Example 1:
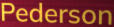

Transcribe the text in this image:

Pederson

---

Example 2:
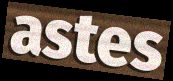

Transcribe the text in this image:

astes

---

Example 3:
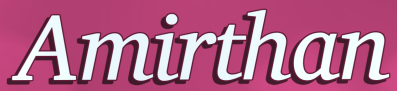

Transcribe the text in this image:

Amirthan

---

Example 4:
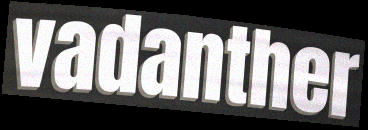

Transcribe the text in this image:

vadanther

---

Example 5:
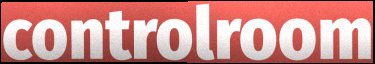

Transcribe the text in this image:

controlroom